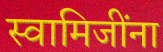
स्वामिजींना